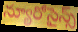
న్యూరోసైన్స్